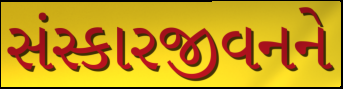
સંસ્કારજીવનને